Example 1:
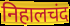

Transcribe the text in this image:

निहालचंद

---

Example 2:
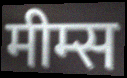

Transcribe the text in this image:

मीम्‍स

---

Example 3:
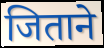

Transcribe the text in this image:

जिताने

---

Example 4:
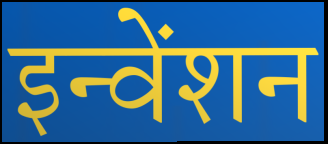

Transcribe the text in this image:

इन्वेंशन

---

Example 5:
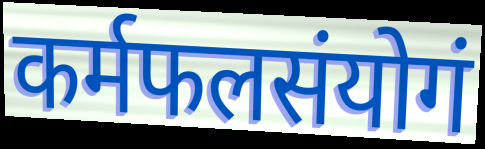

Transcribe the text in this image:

कर्मफलसंयोगं